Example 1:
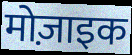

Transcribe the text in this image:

मोज़ाइक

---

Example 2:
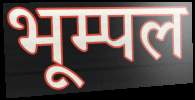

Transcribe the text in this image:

भूम्पल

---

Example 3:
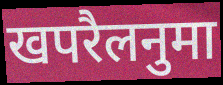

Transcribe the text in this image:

खपरैलनुमा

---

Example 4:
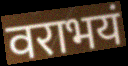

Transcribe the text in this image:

वराभयं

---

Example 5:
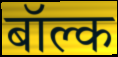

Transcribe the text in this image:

बॉल्क